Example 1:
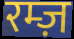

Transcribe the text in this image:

रम्ज़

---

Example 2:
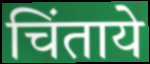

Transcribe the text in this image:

चिंताये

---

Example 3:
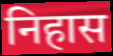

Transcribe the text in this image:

निहास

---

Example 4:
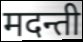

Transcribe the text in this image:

मदन्ती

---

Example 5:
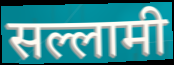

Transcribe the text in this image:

सल्लामी